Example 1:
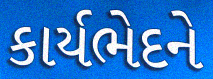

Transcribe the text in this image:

કાર્યભેદને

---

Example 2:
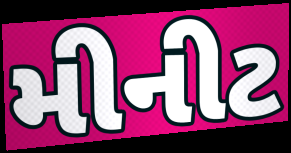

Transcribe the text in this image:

મીનીટ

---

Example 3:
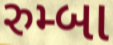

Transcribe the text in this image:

રુમ્બા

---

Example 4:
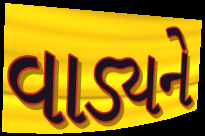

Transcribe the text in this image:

વાડ્યને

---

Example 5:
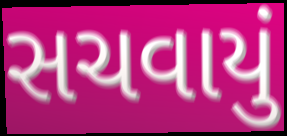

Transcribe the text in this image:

સચવાયું